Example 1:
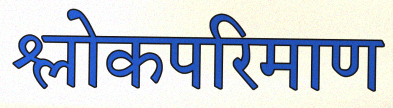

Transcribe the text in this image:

श्लोकपरिमाण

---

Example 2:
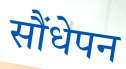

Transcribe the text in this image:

सौंधेपन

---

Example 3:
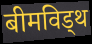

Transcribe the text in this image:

बीमविड्थ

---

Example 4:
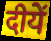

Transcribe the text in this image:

दीयें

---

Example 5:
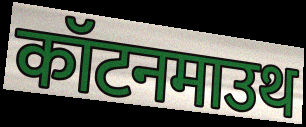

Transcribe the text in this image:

कॉटनमाउथ